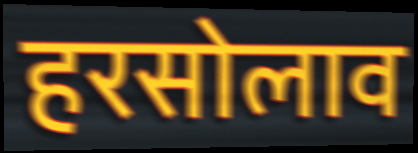
हरसोलाव